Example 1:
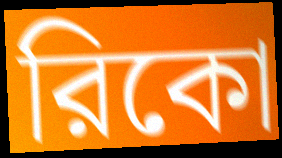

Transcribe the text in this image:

রিকো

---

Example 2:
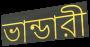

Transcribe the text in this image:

ভান্ডারী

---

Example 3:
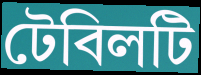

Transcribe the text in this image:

টেবিলটি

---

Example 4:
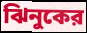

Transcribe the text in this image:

ঝিনুকের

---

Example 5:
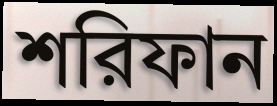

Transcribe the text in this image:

শরিফান